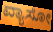
ವ್ಯಾಸೋ